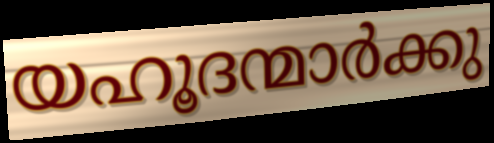
യഹൂദന്മാർക്കു